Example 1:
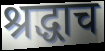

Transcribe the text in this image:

श्रद्धाच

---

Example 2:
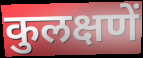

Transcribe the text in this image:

कुलक्षणें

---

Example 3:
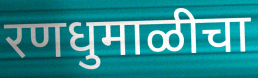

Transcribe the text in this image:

रणधुमाळीचा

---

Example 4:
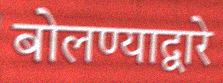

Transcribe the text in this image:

बोलण्याद्वारे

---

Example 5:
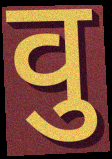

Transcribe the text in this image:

वु